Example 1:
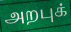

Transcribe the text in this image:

அறபுக்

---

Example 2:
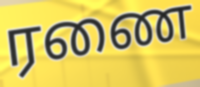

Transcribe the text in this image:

ரணை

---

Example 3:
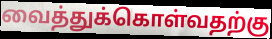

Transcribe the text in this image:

வைத்துக்கொள்வதற்கு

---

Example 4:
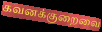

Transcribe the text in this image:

கவனக்குறைவை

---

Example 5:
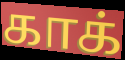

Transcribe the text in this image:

காக்